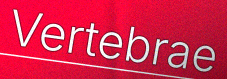
Vertebrae